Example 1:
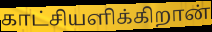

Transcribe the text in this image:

காட்சியளிக்கிறான்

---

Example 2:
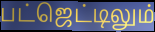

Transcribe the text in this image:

பட்ஜெட்டிலும்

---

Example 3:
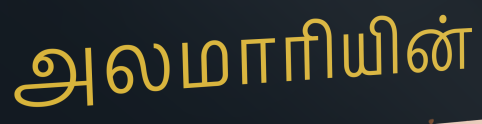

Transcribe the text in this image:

அலமாரியின்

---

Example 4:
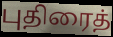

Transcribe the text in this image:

புதிரைத்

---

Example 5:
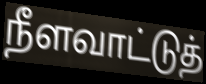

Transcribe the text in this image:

நீளவாட்டுத்